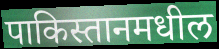
पाकिस्तानमधील